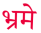
भ्रमे